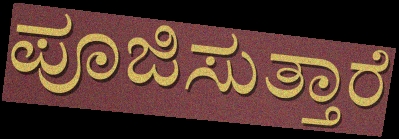
ಪೂಜಿಸುತ್ತಾರೆ